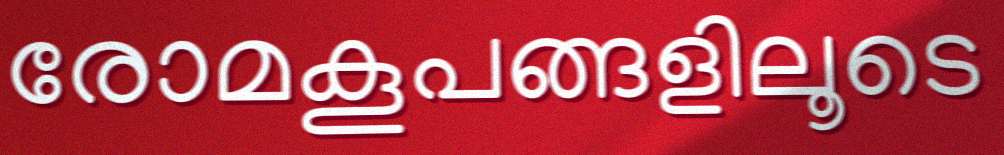
രോമകൂപങ്ങളിലൂടെ